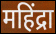
महिंद्रा